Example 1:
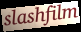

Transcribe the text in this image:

slashfilm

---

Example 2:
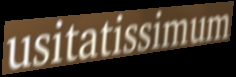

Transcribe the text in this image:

usitatissimum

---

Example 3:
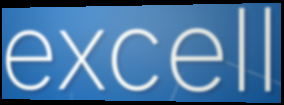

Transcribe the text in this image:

excell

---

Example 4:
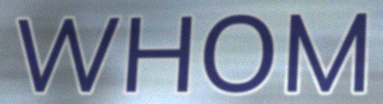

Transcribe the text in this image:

WHOM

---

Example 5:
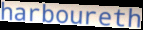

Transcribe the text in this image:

harboureth